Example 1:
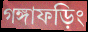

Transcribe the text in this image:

গঙ্গাফড়িং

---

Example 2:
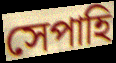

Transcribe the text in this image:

সেপাহি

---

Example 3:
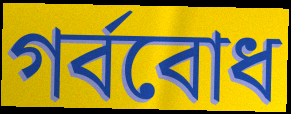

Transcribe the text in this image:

গর্ববোধ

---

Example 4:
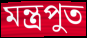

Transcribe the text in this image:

মন্ত্রপুত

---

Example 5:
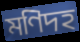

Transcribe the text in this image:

মণিদহ